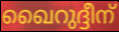
ഖൈറുദ്ദീന്